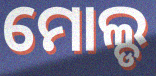
ମୋଲ୍ଡ